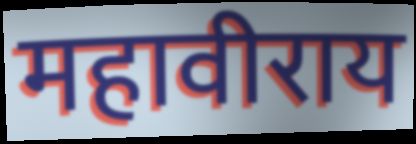
महावीराय